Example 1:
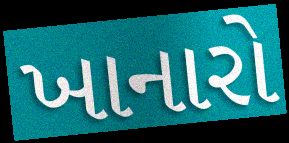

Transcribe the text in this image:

ખાનારો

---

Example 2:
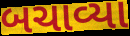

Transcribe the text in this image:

બચાવ્યા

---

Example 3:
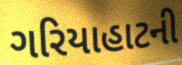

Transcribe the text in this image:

ગરિયાહાટની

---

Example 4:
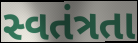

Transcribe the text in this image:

સ્વતંત્રતા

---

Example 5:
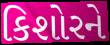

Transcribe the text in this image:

કિશોરને